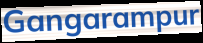
Gangarampur